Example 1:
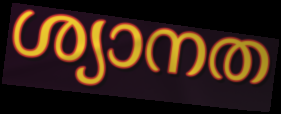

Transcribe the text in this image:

ശ്യാനത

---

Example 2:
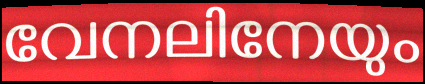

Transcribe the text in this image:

വേനലിനേയും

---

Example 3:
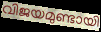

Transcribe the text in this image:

വിജയമുണ്ടായി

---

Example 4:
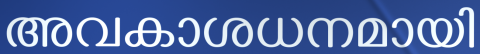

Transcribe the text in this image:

അവകാശധനമായി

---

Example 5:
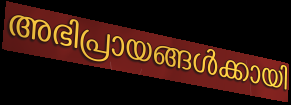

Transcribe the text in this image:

അഭിപ്രായങ്ങൾക്കായി